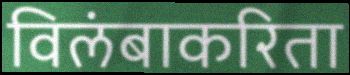
विलंबाकरिता